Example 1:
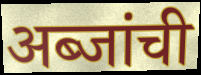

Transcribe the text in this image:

अब्जांची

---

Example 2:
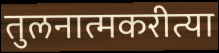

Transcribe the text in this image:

तुलनात्मकरीत्या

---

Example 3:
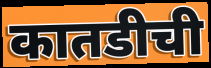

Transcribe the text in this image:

कातडीची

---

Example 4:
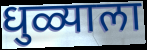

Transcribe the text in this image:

धुळ्याला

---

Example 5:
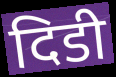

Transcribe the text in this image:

दिडी